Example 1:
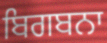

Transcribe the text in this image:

ਬਿਗਬਨਾ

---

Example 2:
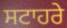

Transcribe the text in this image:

ਸਟਾਹਰੇ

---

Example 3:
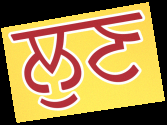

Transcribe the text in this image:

ਲੁਣ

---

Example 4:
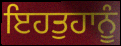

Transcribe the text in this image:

ਇਹਤੁਹਾਨੂੰ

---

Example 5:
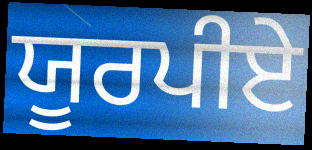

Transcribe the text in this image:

ਯੂਰਪੀਏ